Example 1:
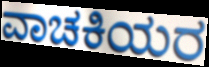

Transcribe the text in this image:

ವಾಚಕಿಯರ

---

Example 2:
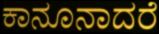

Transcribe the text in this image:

ಕಾನೂನಾದರೆ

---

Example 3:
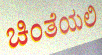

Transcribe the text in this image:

ಚಿಂತೆಯಲಿ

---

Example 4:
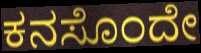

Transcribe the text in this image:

ಕನಸೊಂದೇ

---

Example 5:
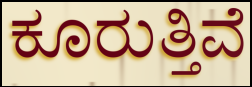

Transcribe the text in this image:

ಕೂರುತ್ತಿವೆ